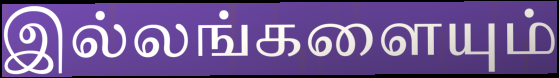
இல்லங்களையும்